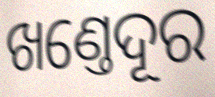
ଖଣ୍ତେଦୂର